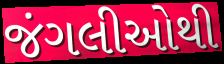
જંગલીઓથી